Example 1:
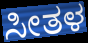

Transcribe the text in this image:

ಸೀತಳ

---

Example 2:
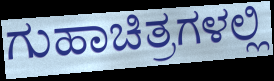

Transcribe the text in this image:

ಗುಹಾಚಿತ್ರಗಳಲ್ಲಿ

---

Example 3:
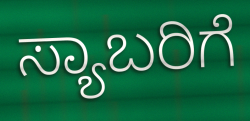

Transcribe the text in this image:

ಸ್ಯಾಬರಿಗೆ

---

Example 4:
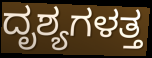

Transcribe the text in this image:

ದೃಶ್ಯಗಳತ್ತ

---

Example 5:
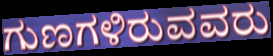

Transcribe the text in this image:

ಗುಣಗಳಿರುವವರು